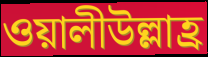
ওয়ালীউল্লাহ্র